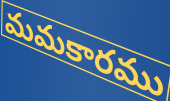
మమకారము